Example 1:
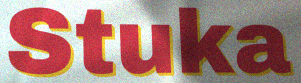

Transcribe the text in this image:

Stuka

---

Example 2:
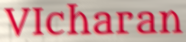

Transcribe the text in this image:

VIcharan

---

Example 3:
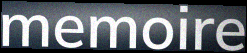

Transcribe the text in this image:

memoire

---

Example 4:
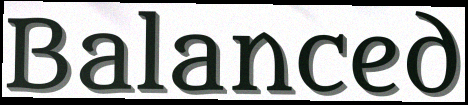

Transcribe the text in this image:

Balanced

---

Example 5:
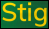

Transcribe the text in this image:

Stig